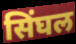
सिंघल